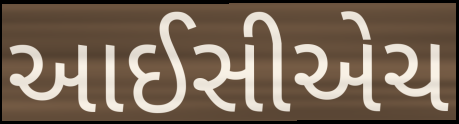
આઈસીએચ